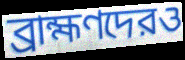
ব্রাহ্মণদেরও